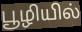
பூழியில்